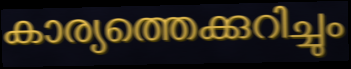
കാര്യത്തെക്കുറിച്ചും